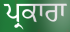
ਪ੍ਰਕਾਰਾ